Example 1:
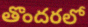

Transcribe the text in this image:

తొందరలో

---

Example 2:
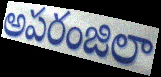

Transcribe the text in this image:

అపరంజిలా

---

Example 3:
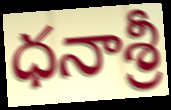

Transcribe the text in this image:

ధనాశ్రీ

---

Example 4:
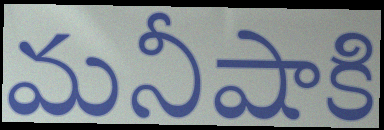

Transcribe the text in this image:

మనీషాకి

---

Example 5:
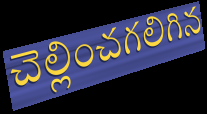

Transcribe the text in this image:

చెల్లించగలిగిన